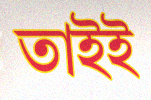
তাইই